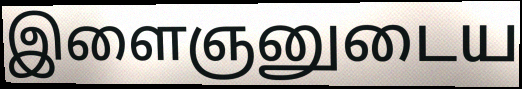
இளைஞனுடைய